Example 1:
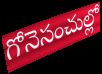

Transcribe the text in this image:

గోనెసంచుల్లో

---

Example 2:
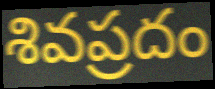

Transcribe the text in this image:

శివప్రదం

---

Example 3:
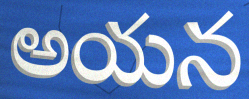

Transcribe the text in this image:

అయన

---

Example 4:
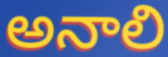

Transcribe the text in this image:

అనాలి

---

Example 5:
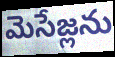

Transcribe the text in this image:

మెసేజ్లను